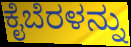
ಕೈಬೆರಳನ್ನು